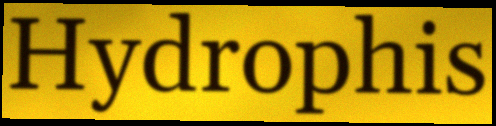
Hydrophis